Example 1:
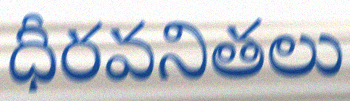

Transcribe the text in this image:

ధీరవనితలు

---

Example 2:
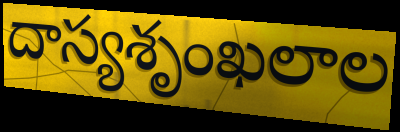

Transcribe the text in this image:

దాస్యశృంఖలాల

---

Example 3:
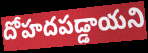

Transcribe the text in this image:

దోహదపడ్డాయని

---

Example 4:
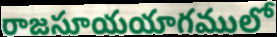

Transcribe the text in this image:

రాజసూయయాగములో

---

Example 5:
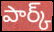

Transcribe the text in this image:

పార్క్